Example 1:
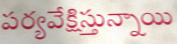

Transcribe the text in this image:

పర్యవేక్షిస్తున్నాయి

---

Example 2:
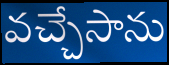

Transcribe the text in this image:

వచ్చేసాను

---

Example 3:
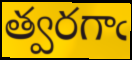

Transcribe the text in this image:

త్వరగాఁ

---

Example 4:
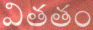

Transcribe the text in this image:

వితతం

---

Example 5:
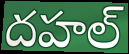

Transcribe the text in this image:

దహల్